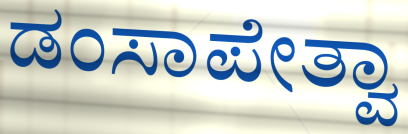
ಡಂಸಾಪೇತ್ವಾ